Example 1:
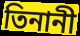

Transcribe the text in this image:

তিনানী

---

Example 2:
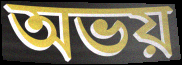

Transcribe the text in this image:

অভয়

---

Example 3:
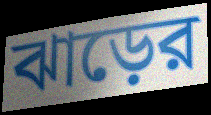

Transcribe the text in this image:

ঝাড়ের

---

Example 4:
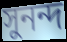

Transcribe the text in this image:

সুনন্দ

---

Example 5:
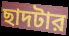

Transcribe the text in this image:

ছাদটার